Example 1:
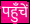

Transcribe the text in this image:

पहुँचें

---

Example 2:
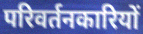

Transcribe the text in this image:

परिवर्तनकारियों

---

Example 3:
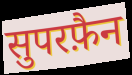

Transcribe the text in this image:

सुपरफ़ैन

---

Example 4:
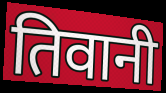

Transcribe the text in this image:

तिवानी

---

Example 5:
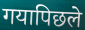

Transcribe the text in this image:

गयापिछले